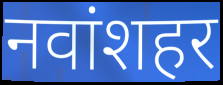
नवांशहर